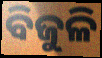
ବିଜୁଳି